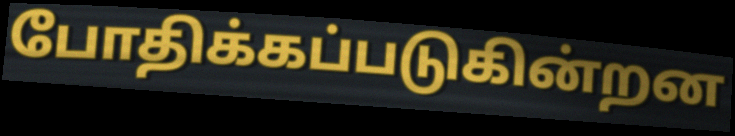
போதிக்கப்படுகின்றன